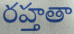
రహ్తతా